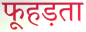
फूहड़ता